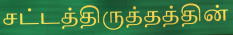
சட்டத்திருத்தத்தின்